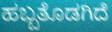
ಹಬ್ಬತೊಡಗಿದೆ